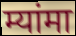
म्यांमा